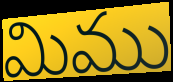
మిము